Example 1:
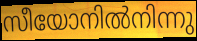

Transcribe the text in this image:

സീയോനിൽനിന്നു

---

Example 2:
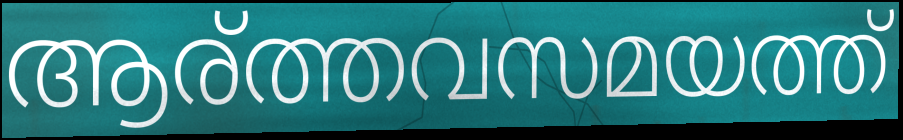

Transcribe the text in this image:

ആര്ത്തവസമയത്ത്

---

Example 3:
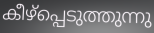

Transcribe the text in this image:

കീഴ്പ്പെടുത്തുന്നു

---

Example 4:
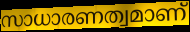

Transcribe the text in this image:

സാധാരണത്വമാണ്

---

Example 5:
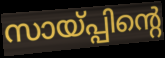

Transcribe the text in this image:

സായ്പ്പിന്റെ